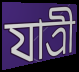
যাত্রী